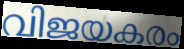
വിജയകരം